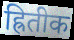
ह्रितीक